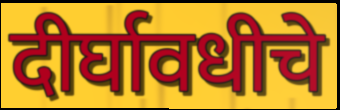
दीर्घावधीचे